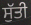
ਸੁੱਤੀ